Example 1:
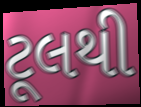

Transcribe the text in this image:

ટૂલથી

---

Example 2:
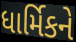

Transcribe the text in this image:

ધાર્મિકને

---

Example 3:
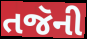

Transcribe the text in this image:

તજૅની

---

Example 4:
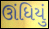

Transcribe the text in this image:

ઊંધિયું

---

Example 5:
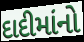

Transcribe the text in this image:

દાદીમાંનો